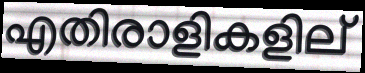
എതിരാളികളില്